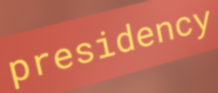
presidency